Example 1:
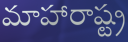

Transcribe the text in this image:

మాహారాష్ట్ర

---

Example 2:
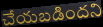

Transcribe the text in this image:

చేయబడిందని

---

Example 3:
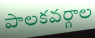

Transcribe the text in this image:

పాలకవర్గాల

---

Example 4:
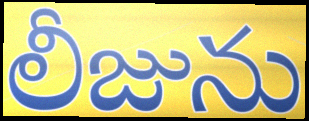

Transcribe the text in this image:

లీజును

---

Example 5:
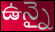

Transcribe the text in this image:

ఉన్నై